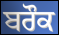
ਬਰੌਕ